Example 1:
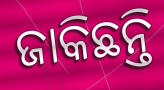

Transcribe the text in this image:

ଜାକିଛନ୍ତି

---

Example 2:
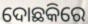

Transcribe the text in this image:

ଦୋଛକିରେ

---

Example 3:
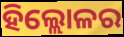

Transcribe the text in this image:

ହିଲ୍ଲୋଳର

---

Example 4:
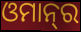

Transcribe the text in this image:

ଓମାନ୍‌ର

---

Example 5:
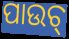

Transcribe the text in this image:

ପାଉଚ୍